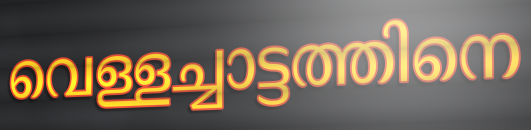
വെള്ളച്ചാട്ടത്തിനെ